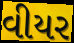
વીયર